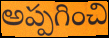
అప్పగించి